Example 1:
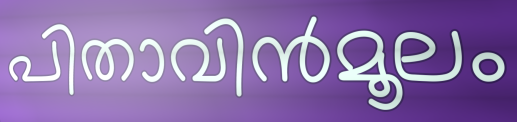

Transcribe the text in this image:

പിതാവിൻമൂലം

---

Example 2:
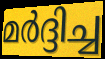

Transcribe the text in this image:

മർദ്ദിച്ച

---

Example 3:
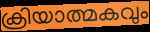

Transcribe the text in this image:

ക്രിയാത്മകവും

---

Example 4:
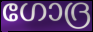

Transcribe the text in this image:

ഗോദ്ര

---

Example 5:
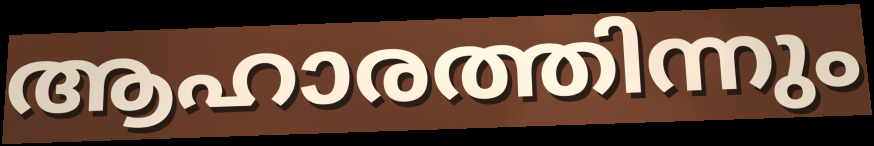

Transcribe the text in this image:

ആഹാരത്തിന്നും